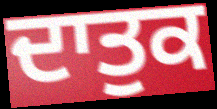
ਦਾਤੁਕ